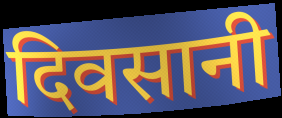
दिवसानी